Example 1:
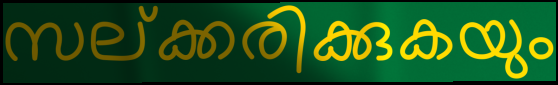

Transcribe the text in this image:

സല്ക്കരിക്കുകയും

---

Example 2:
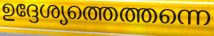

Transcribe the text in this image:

ഉദ്ദേശ്യത്തെത്തന്നെ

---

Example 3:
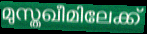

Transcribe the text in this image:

മുസ്തഖീമിലേക്ക്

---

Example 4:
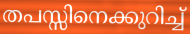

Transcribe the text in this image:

തപസ്സിനെക്കുറിച്ച്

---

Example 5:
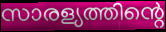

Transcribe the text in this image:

സാരള്യത്തിന്റെ